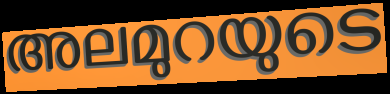
അലമുറയുടെ